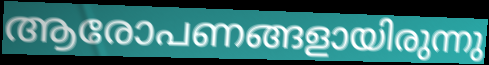
ആരോപണങ്ങളായിരുന്നു